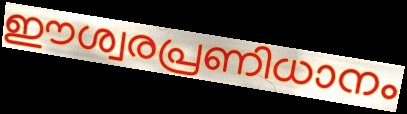
ഈശ്വരപ്രണിധാനം